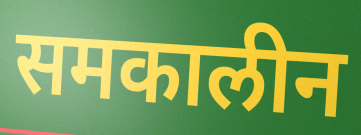
समकालीन